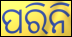
ପରିନି